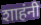
शाहंनी